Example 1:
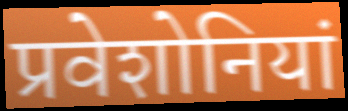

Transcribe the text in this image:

प्रवेशोनियां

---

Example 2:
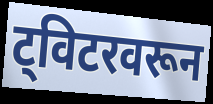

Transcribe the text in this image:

ट्विटरवरून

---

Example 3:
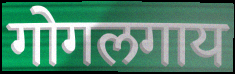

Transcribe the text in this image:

गोगलगाय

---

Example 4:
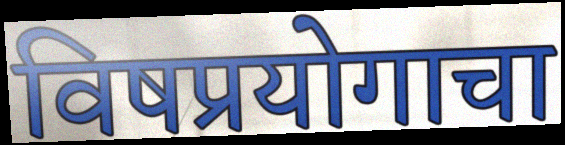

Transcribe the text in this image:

विषप्रयोगाचा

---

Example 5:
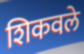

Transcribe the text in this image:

शिकवले